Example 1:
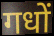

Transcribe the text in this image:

गधों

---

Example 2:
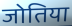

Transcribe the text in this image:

जोतिया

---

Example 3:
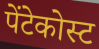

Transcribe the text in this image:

पेंटेकोस्ट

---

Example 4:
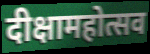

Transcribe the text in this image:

दीक्षामहोत्सव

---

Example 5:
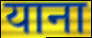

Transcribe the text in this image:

याना